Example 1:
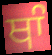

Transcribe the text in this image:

ਥਾੰ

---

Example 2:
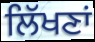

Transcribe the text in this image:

ਲਿੱਖਣਾਂ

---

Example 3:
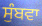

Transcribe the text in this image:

ਸੁੰਬਵਾ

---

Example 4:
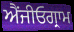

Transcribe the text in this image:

ਐਂਜੀਓਗ੍ਰਾਮ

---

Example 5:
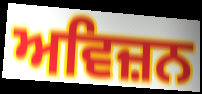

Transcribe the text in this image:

ਅਵਿਜ਼ਨ